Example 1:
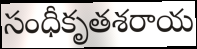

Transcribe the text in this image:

సంధీకృతశరాయ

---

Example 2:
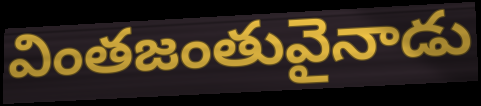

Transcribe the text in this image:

వింతజంతువైనాడు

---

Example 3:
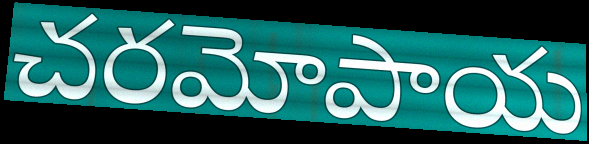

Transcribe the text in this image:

చరమోపాయ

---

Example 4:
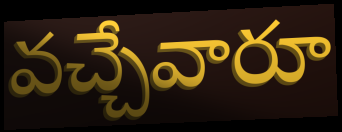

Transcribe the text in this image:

వచ్చేవారూ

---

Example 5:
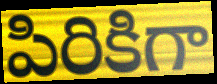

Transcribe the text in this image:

పిరికిగా